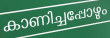
കാണിച്ചപ്പോഴും